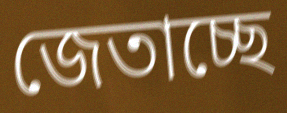
জেতাচ্ছে